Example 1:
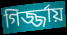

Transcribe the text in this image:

গির্জ্জায়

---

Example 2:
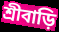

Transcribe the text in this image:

শ্রীবাড়ি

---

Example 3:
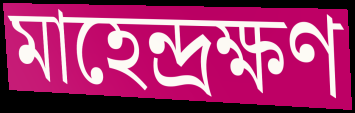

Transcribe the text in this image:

মাহেন্দ্রক্ষণ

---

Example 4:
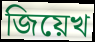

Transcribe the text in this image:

জিয়েখ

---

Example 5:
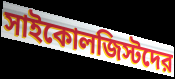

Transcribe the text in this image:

সাইকোলজিস্টদের